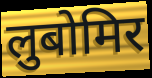
लुबोमिर